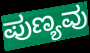
ಪುಣ್ಯವು